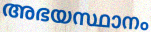
അഭയസ്ഥാനം